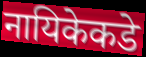
नायिकेकडे